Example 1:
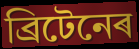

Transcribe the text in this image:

ব্ৰিটেনেৰ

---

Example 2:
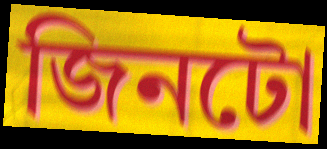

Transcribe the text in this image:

জিনটো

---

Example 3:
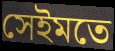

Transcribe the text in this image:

সেইমতে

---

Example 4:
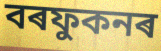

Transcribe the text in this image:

বৰফুকনৰ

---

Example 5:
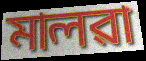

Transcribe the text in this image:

মালৱা